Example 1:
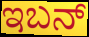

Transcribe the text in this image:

ಇಬನ್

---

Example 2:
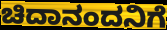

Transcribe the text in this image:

ಚಿದಾನಂದನಿಗೆ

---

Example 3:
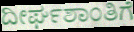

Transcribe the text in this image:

ದೀರ್ಘಶಾಂತಿಗೆ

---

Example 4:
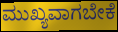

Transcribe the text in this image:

ಮುಖ್ಯವಾಗಬೇಕೆ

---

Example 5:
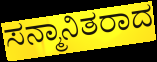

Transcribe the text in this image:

ಸನ್ಮಾನಿತರಾದ